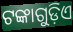
ଟଙ୍କାଗୁଡ଼ିଏ